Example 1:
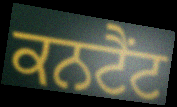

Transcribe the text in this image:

ਕਨਟੈਂਟ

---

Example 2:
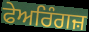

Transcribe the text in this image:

ਫੇਅਰਿੰਗਜ਼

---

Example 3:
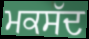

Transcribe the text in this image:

ਮਕਸੱਦ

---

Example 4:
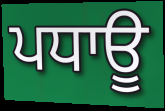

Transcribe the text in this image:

ਪਧਾਊ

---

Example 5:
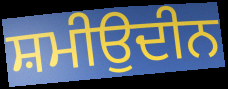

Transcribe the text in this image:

ਸ਼ਮੀਉਦੀਨ